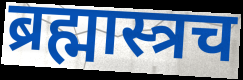
ब्रह्मास्त्रच